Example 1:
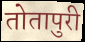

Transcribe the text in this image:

तोतापुरी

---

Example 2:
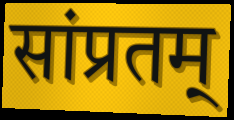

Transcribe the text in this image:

सांप्रतम्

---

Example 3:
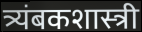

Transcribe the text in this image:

त्र्यंबकशास्त्री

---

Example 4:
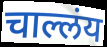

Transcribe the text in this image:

चाल्लंय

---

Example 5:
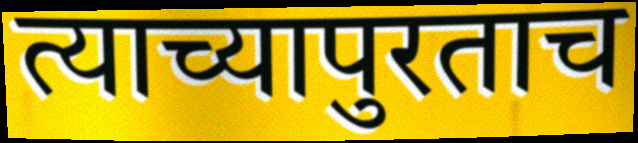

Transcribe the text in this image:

त्याच्यापुरताच